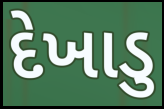
દેખાડુ